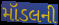
મૉડલની